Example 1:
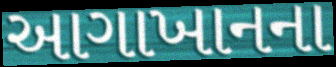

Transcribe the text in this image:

આગાખાનના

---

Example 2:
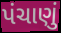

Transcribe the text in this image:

પંચાણું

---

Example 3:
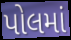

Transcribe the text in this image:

પોલમાં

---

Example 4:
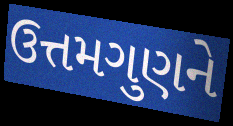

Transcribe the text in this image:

ઉત્તમગુણને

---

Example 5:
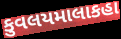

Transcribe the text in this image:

કુવલયમાલાકહા